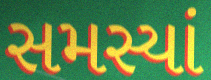
સમસ્યાં